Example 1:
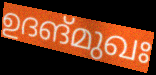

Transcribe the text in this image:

ഉദങ്മുഖഃ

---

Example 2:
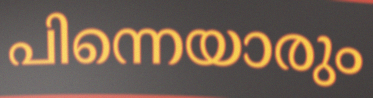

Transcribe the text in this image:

പിന്നെയാരും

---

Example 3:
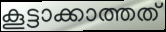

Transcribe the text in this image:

കൂട്ടാക്കാത്തത്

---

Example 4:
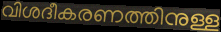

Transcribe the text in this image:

വിശദീകരണത്തിനുള്ള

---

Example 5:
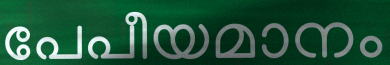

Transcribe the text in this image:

പേപീയമാനം